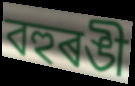
বহুৰঙী